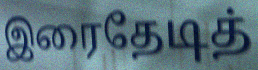
இரைதேடித்